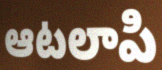
ఆటలాపి